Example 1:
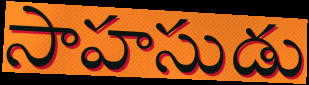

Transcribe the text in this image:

సాహసుడు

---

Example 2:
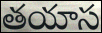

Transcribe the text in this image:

తయాస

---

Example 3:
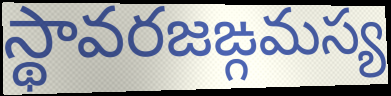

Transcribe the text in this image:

స్థావరజఙ్గమస్య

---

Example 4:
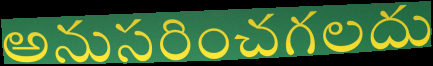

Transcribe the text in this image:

అనుసరించగలదు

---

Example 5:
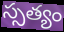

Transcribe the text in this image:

స్సత్యం